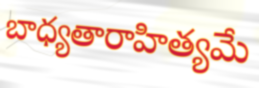
బాధ్యతారాహిత్యమే